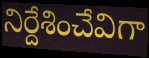
నిర్దేశించేవిగా